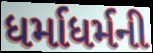
ધર્માધર્મની